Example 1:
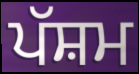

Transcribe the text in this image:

ਪੱਸ਼ਮ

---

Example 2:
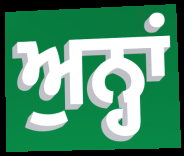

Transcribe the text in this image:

ਅੁਨ੍ਹਾਂ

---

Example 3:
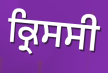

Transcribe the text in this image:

ਕ੍ਰਿਸਸੀ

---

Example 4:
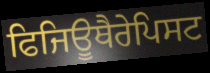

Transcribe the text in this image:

ਫਿਜਿਊਥੈਰੇਪਿਸਟ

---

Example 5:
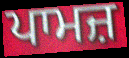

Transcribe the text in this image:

ਪਾਮਜ਼